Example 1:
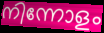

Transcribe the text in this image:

നിന്നോളം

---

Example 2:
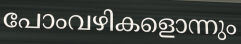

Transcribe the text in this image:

പോംവഴികളൊന്നും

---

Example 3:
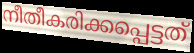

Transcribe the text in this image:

നീതീകരിക്കപ്പെട്ടത്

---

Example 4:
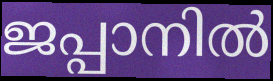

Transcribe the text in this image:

ജപ്പാനിൽ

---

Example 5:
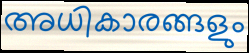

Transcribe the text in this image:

അധികാരങ്ങളും